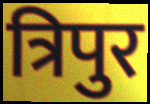
त्रिपुर